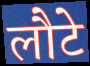
लौटे